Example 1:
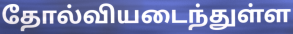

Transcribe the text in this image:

தோல்வியடைந்துள்ள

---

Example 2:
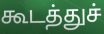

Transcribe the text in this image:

கூடத்துச்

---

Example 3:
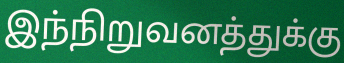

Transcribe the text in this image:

இந்நிறுவனத்துக்கு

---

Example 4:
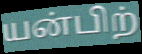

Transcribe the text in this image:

யன்பிற்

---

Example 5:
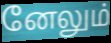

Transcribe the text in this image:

னேலும்